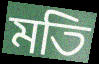
মতি